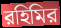
রহিমির